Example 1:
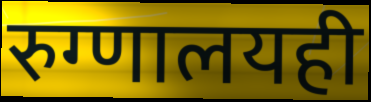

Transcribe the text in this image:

रुग्णालयही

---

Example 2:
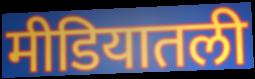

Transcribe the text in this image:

मीडियातली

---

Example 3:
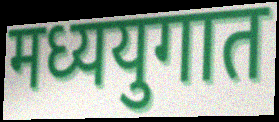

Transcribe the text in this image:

मध्ययुगात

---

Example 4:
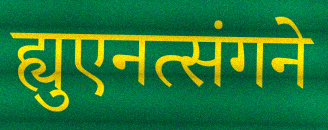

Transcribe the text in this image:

ह्युएनत्संगने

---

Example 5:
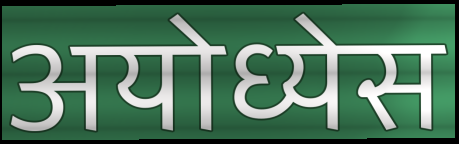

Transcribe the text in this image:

अयोध्येस